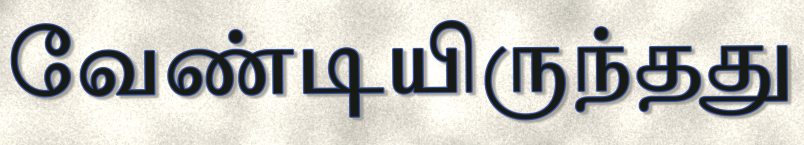
வேண்டியிருந்தது